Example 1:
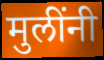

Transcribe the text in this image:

मुलींनी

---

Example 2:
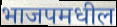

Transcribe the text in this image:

भाजपमधील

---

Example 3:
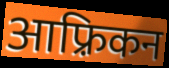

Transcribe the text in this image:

आफ़्रिकन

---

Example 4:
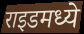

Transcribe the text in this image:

राइडमध्ये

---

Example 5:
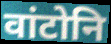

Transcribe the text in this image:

वांटोनि